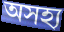
অসহ্য